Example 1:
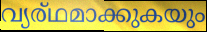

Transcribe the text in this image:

വ്യര്ഥമാക്കുകയും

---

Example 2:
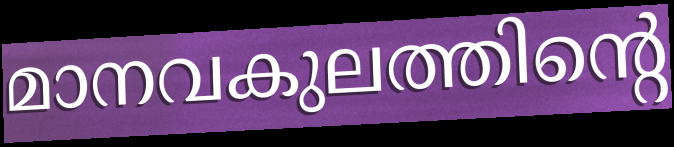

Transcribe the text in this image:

മാനവകുലത്തിന്റെ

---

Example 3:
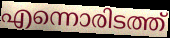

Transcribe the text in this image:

എന്നൊരിടത്ത്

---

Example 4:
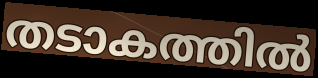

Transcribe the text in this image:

തടാകത്തിൽ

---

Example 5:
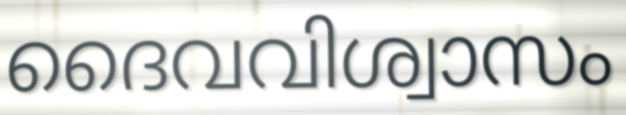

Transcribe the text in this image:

ദൈവവിശ്വാസം